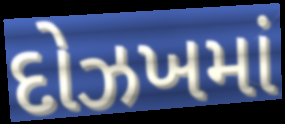
દોઝખમાં